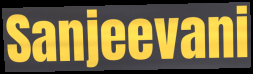
Sanjeevani